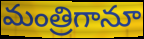
మంత్రిగానూ